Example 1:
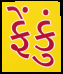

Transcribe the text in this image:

ફેંકું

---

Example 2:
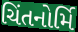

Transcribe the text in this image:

ચિંતનોર્મિ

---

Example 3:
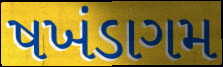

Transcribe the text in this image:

ષખંડાગમ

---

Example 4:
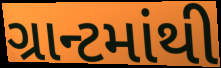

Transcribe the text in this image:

ગ્રાન્ટમાંથી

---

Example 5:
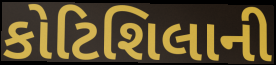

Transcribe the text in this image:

કોટિશિલાની